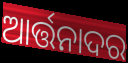
ଆର୍ତ୍ତନାଦର